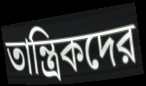
তান্ত্রিকদের